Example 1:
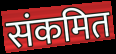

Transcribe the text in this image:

संकमित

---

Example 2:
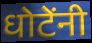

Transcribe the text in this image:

धोटेंनी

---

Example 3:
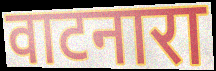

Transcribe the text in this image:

वाटनारा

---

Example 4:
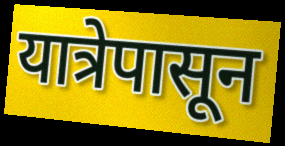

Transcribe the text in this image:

यात्रेपासून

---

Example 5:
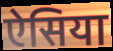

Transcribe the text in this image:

ऐसिया